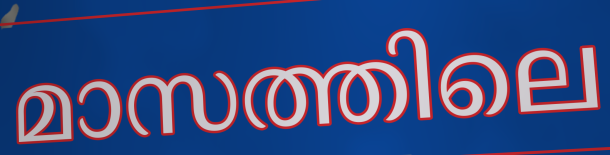
മാസത്തിലെ